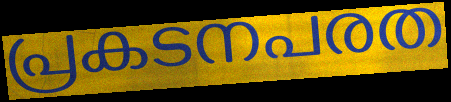
പ്രകടനപരത